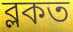
ব্লকত